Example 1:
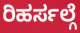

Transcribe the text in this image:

ರಿಹರ್ಸಲ್ಗೆ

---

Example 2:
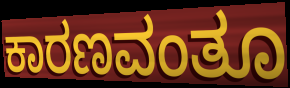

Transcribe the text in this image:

ಕಾರಣವಂತೂ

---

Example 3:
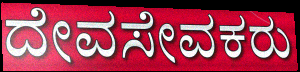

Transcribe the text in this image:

ದೇವಸೇವಕರು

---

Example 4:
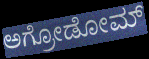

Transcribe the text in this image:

ಅಗ್ರೋಡೋಮ್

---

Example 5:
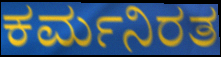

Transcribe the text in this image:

ಕರ್ಮನಿರತ